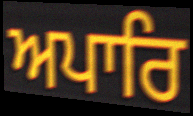
ਅਪਾਰਿ